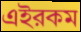
এইরকম